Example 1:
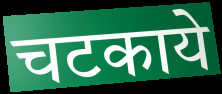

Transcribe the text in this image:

चटकाये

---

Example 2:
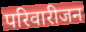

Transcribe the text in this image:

परिवारीजन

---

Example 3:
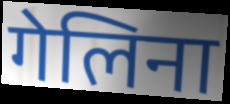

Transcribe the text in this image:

गेलिना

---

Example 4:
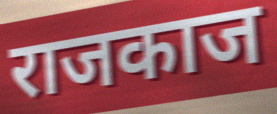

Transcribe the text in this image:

राजकाज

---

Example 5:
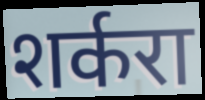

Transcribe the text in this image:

शर्करा